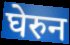
घेरुन